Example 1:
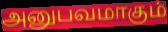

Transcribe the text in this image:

அனுபவமாகும்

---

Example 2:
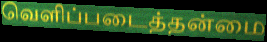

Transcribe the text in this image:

வெளிப்படைத்தன்மை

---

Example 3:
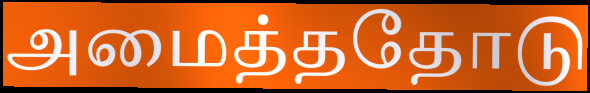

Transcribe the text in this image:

அமைத்ததோடு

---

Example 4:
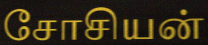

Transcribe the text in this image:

சோசியன்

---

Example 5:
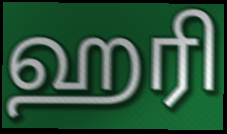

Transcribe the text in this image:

ஹரி